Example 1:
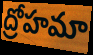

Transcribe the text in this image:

ద్రోహమా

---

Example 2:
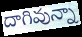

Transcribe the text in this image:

దాగివున్నా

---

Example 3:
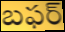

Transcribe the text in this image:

బఫర్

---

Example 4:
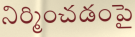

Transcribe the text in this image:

నిర్మించడంపై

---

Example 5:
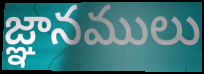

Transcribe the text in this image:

జ్ఞానములు